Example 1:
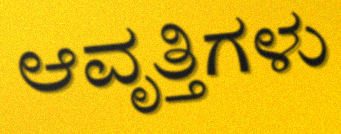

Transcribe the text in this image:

ಆವೃತ್ತಿಗಳು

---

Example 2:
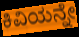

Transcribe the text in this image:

ಕಿವಿಯನ್ನೇ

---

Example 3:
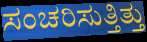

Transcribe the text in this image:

ಸಂಚರಿಸುತ್ತಿತ್ತು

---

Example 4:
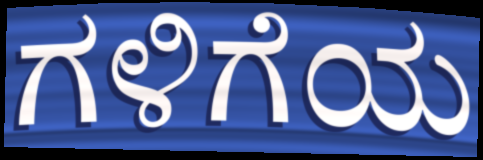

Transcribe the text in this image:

ಗಳಿಗೆಯ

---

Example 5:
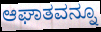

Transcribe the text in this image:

ಆಘಾತವನ್ನೂ